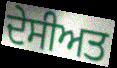
ਦੇਸੀਅਤ